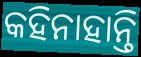
କହିନାହାନ୍ତି